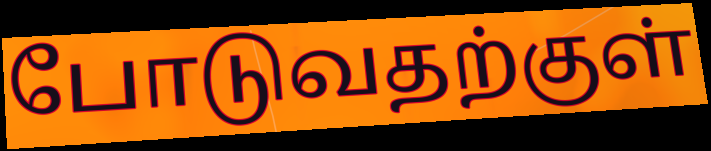
போடுவதற்குள்